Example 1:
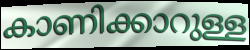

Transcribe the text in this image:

കാണിക്കാറുള്ള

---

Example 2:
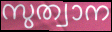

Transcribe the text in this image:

സുത്വാന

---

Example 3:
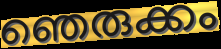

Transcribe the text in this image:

ഞെരുക്കം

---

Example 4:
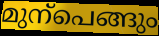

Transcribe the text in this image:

മുന്പെങ്ങും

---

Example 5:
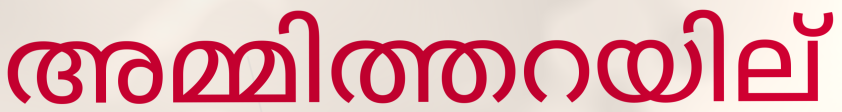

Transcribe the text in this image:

അമ്മിത്തറയില്